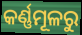
କର୍ଣ୍ଣମୂଳରୁ